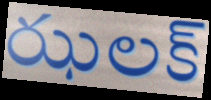
ఝలక్